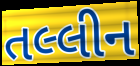
તલ્લીન